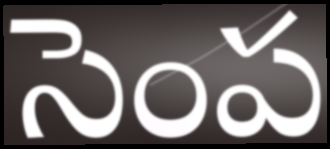
సెంప